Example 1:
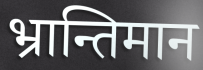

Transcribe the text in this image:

भ्रान्तिमान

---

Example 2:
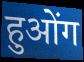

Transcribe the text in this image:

हुओंग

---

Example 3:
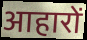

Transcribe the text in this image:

आहारों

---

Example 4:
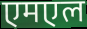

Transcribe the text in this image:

एमएल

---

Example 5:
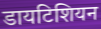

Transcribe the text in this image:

डायटिशियन